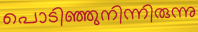
പൊടിഞ്ഞുനിന്നിരുന്നു